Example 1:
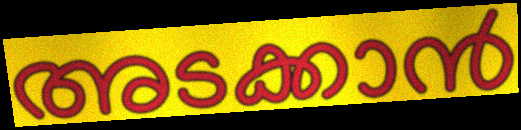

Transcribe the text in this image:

അടക്കാൻ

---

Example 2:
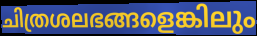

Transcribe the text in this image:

ചിത്രശലഭങ്ങളെങ്കിലും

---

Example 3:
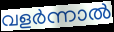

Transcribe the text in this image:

വളർന്നാൽ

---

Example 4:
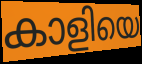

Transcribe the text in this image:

കാളിയെ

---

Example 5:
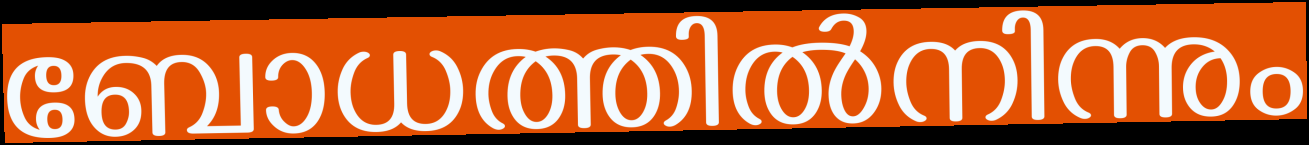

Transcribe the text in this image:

ബോധത്തിൽനിന്നും